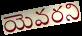
యెవరని